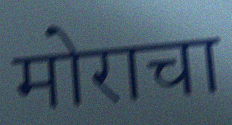
मोराचा